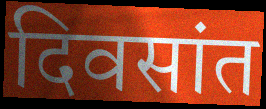
दिवसांत